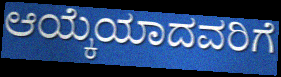
ಆಯ್ಕೆಯಾದವರಿಗೆ